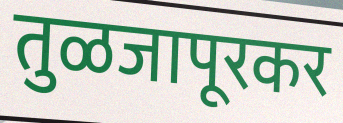
तुळजापूरकर